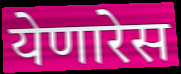
येणारेस